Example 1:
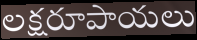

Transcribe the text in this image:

లక్షరూపాయలు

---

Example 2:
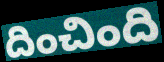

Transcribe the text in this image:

దించింది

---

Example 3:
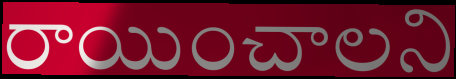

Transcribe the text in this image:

రాయించాలని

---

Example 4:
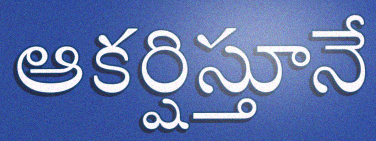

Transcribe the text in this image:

ఆకర్షిస్తూనే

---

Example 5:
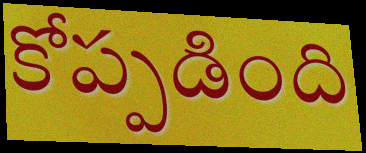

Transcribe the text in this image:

కోప్పడింది